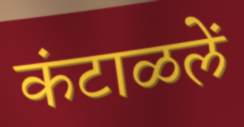
कंटाळलें